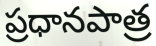
ప్రధానపాత్ర